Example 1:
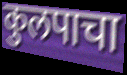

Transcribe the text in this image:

कुलपाचा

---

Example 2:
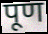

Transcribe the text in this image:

पूण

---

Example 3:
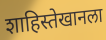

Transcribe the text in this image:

शाहिस्तेखानला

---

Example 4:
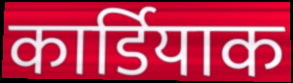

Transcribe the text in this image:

कार्डियाक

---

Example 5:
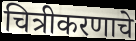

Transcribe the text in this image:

चित्रीकरणाचे